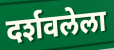
दर्शवलेला